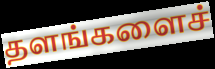
தளங்களைச்